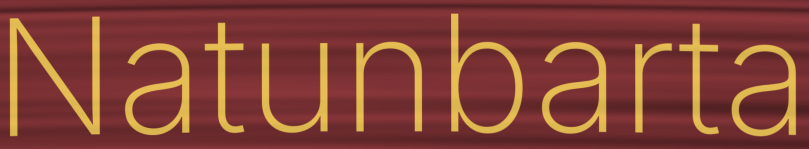
Natunbarta